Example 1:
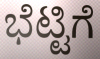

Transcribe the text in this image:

ಭೆಟ್ಟಿಗೆ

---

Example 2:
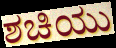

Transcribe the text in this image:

ಶಚಿಯು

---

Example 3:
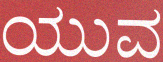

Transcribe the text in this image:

ಯುವ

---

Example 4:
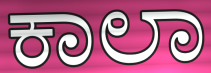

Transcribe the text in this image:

ಕಾಲಾ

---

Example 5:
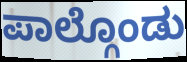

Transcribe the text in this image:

ಪಾಲ್ಗೊಂಡು